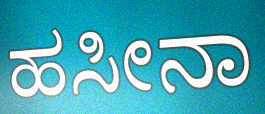
ಹಸೀನಾ